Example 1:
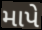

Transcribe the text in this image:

માપે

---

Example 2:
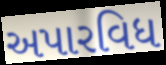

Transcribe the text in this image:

અપારવિધ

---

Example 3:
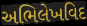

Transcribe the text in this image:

અભિલેખવિદ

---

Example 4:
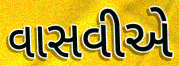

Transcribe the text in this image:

વાસવીએ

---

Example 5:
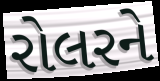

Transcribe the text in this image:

રોલરને